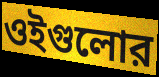
ওইগুলোর